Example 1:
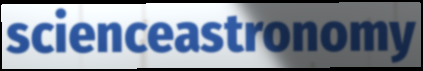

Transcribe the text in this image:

scienceastronomy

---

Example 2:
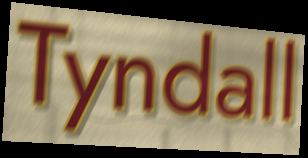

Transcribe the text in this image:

Tyndall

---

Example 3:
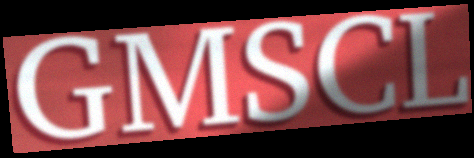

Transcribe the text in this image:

GMSCL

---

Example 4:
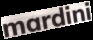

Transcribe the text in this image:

mardini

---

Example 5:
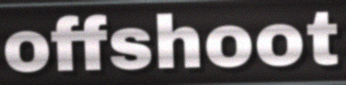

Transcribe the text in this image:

offshoot